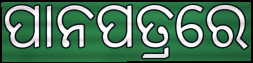
ପାନପତ୍ରରେ